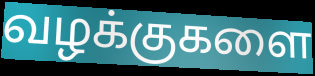
வழக்குகளை